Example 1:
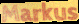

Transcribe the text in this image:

Markus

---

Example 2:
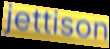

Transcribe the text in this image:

jettison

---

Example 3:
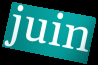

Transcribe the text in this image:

juin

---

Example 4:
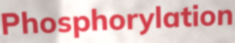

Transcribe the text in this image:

Phosphorylation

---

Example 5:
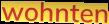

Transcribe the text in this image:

wohnten